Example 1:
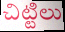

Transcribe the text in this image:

చిట్టిలు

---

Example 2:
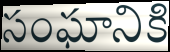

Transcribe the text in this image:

సంఘానికి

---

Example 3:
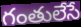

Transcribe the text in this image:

గంతులేసే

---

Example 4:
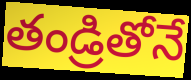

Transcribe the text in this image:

తండ్రితోనే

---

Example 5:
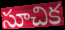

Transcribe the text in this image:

సూచిక